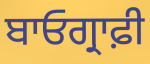
ਬਾਓਗ੍ਰਾਫ਼ੀ